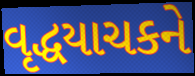
વૃદ્ધયાચકને